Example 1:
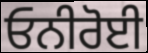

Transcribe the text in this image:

ਓਨੀਰੋਈ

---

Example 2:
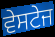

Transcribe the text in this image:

ਵੇਸਟੇਜ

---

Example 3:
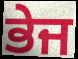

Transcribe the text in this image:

ਭੇਜ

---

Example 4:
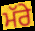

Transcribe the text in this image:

ਮੱਰੇ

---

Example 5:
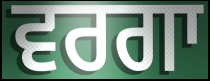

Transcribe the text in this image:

ਵਰਗਾ